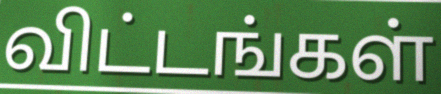
விட்டங்கள்